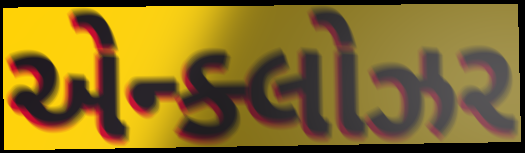
એન્ક્લોઝર